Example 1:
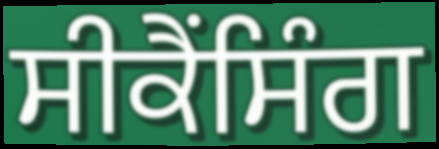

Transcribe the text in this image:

ਸੀਕੈਂਸਿੰਗ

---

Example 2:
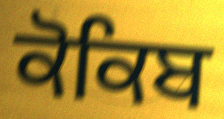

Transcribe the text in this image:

ਕੋਕਿਬ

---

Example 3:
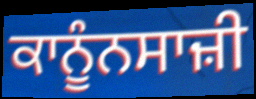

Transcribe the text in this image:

ਕਾਨੂੰਨਸਾਜ਼ੀ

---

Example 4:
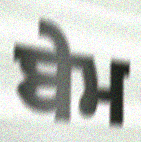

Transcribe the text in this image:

ਬੇਮ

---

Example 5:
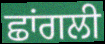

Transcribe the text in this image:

ਛਾਂਗਲੀ